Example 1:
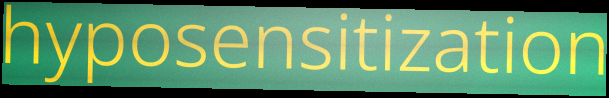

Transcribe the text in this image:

hyposensitization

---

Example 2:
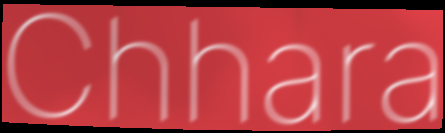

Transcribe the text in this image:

Chhara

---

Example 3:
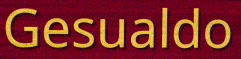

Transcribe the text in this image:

Gesualdo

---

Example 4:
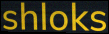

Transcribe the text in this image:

shloks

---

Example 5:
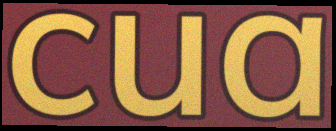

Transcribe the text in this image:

cua